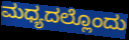
ಮಧ್ಯದಲ್ಲೊಂದು